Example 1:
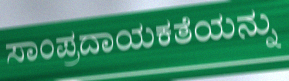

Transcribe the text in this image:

ಸಾಂಪ್ರದಾಯಕತೆಯನ್ನು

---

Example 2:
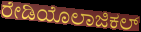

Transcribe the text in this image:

ರೇಡಿಯೊಲಾಜಿಕಲ್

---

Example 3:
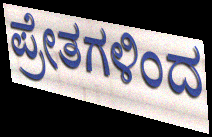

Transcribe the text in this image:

ಪ್ರೇತಗಳಿಂದ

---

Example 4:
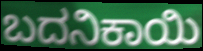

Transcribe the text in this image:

ಬದನಿಕಾಯಿ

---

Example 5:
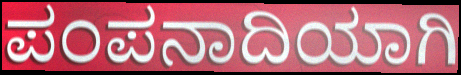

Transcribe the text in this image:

ಪಂಪನಾದಿಯಾಗಿ